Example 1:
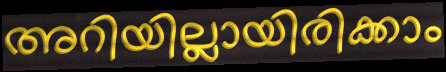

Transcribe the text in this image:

അറിയില്ലായിരിക്കാം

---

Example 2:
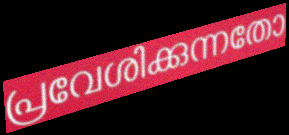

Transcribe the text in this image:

പ്രവേശിക്കുന്നതോ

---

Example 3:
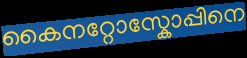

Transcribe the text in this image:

കൈനറ്റോസ്കോപ്പിനെ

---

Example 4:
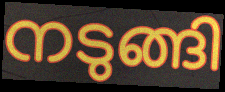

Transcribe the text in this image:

നടുങ്ങി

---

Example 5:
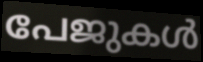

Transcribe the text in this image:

പേജുകൾ